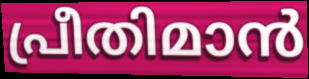
പ്രീതിമാൻ